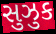
સુઝુક